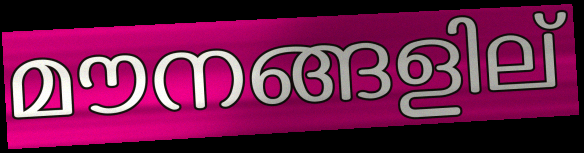
മൗനങ്ങളില്